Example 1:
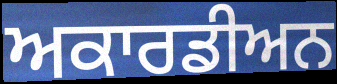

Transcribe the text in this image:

ਅਕਾਰਡੀਅਨ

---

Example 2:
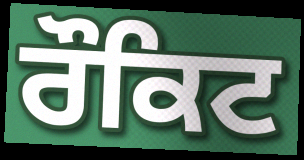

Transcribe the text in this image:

ਰੌਕਿਟ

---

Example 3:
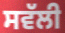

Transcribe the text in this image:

ਸਵੱਲੀ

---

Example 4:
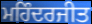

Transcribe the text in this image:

ਮਹਿੰਦਰਜੀਤ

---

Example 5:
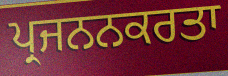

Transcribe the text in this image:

ਪ੍ਰਜਨਨਕਰਤਾ